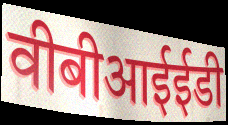
वीबीआईईडी